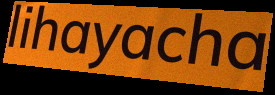
lihayacha